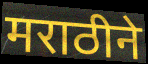
मराठीने